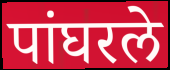
पांघरले